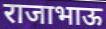
राजाभाऊ